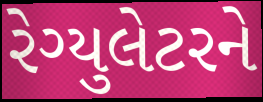
રેગ્યુલેટરને